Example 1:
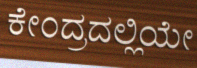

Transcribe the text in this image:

ಕೇಂದ್ರದಲ್ಲಿಯೇ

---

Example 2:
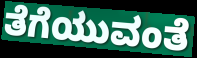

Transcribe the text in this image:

ತೆಗೆಯುವಂತೆ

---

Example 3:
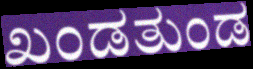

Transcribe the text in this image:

ಖಂಡತುಂಡ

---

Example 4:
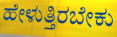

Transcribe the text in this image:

ಹೇಳುತ್ತಿರಬೇಕು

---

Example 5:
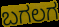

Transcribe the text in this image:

ಬಗಲಗ